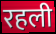
रहली